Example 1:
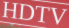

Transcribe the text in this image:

HDTV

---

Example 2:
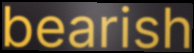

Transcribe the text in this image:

bearish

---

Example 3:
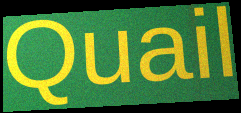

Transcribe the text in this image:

Quail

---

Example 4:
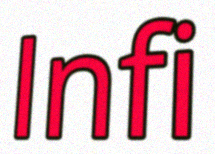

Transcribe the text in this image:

Infi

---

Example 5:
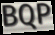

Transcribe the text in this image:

BQP